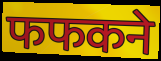
फफकने